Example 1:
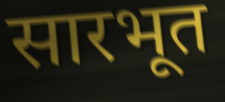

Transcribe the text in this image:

सारभूत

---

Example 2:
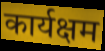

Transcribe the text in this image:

कार्यक्षम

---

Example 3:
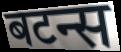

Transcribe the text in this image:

बटन्स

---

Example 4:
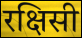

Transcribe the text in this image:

रक्षिसी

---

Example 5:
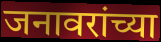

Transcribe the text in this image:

जनावरांच्या